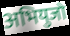
अभियुजो